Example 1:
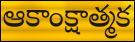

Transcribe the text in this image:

ఆకాంక్షాత్మక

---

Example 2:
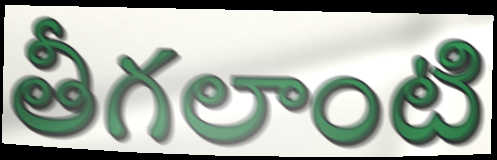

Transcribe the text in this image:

తీగలాంటి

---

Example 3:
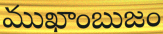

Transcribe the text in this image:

ముఖాంబుజం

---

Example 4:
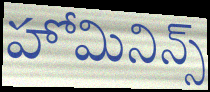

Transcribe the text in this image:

హోమినిన్స్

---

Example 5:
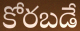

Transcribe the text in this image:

కోరబడే